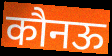
कौनऊ